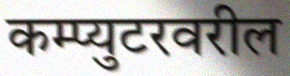
कम्प्युटरवरील